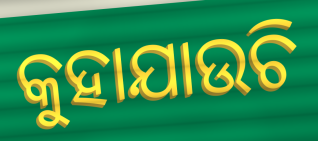
କୁହାଯାଉଚି